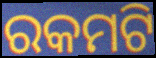
ରକମଟି